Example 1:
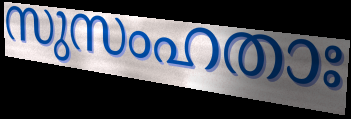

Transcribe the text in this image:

സുസംഹതാഃ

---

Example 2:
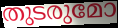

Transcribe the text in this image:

തുടരുമോ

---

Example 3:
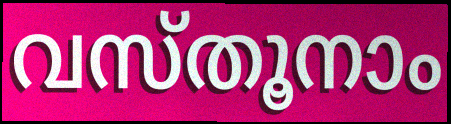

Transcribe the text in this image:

വസ്തൂനാം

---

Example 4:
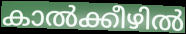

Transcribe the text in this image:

കാൽക്കീഴിൽ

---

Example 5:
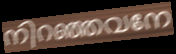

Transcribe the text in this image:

നിറഞ്ഞവനേ